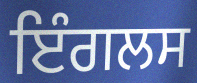
ਇੰਗਲਸ